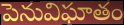
పెనువిఘాతం